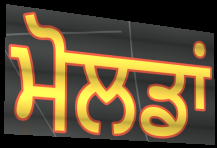
ਮੋਲਡਾਂ